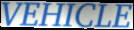
VEHICLE